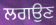
ਲਗਉਣ